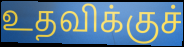
உதவிக்குச்